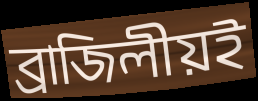
ব্রাজিলীয়ই